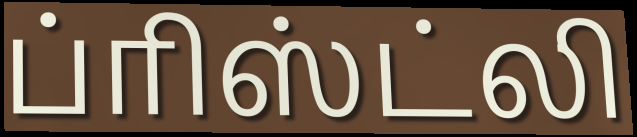
ப்ரிஸ்ட்லி